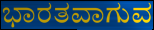
ಭಾರತವಾಗುವ